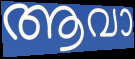
ആവാ